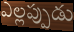
ఎల్లప్పుడు